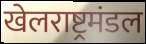
खेलराष्ट्रमंडल